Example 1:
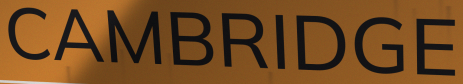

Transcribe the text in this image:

CAMBRIDGE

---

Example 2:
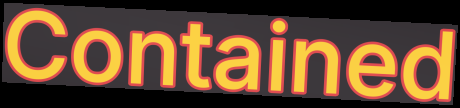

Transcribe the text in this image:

Contained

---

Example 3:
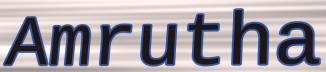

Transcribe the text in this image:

Amrutha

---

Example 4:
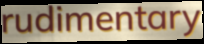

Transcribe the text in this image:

rudimentary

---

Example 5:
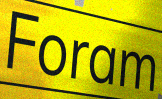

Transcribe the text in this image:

Foram